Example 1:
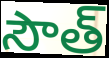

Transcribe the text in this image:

సౌత్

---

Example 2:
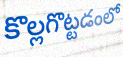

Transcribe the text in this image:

కొల్లగొట్టడంలో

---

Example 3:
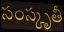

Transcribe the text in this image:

సంస్కృతీ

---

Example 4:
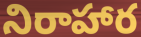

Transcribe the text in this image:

నిరాహార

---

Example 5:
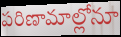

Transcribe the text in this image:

పరిణామాల్లోనూ